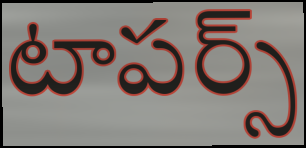
టాపర్స్